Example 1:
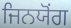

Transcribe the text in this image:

ਜਿਨਯੋਂਗ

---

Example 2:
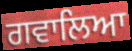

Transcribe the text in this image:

ਗਵਾਲਿਆ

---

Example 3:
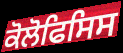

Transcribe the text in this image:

ਕੋਲੋਫਿਸਿਸ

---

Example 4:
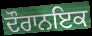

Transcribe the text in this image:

ਦੌਰਾਨਇਕ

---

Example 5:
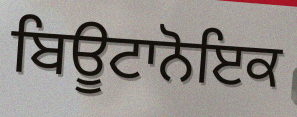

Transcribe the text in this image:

ਬਿਊਟਾਨੋਇਕ